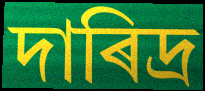
দাৰিদ্ৰ